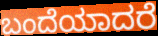
ಬಂದೆಯಾದರೆ